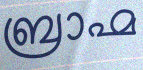
ബ്രാഹ്മ